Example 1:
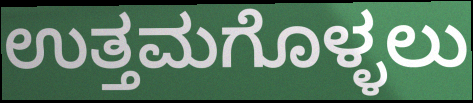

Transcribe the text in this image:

ಉತ್ತಮಗೊಳ್ಳಲು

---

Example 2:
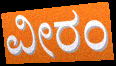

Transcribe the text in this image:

ವೀರಂ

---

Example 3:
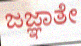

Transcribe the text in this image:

ಜಜ್ಞಾತೇ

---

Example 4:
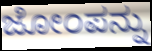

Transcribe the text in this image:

ಜೋಂಪನ್ನು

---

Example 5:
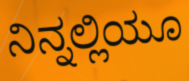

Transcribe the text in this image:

ನಿನ್ನಲ್ಲಿಯೂ